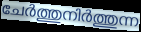
ചേർത്തുനിർത്തുന്ന